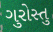
ગુરોસ્તુ